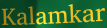
Kalamkar